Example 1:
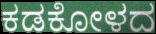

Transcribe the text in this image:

ಕಡಕೋಳದ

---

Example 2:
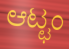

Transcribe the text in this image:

ಆಟ್ಟಂ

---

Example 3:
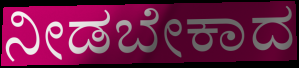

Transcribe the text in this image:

ನೀಡಬೇಕಾದ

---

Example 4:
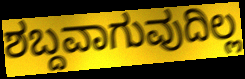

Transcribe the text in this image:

ಶಬ್ದವಾಗುವುದಿಲ್ಲ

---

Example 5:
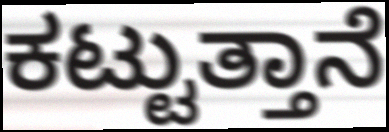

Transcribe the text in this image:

ಕಟ್ಟುತ್ತಾನೆ